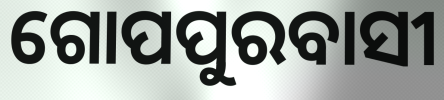
ଗୋପପୁରବାସୀ